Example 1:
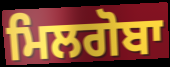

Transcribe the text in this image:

ਮਿਲਗੋਬਾ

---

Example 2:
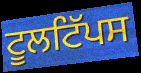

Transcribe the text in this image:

ਟੂਲਟਿੱਪਸ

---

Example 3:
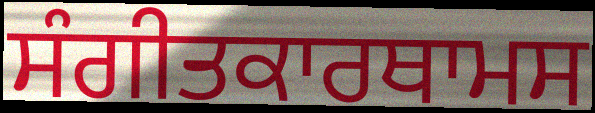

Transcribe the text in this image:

ਸੰਗੀਤਕਾਰਥਾਮਸ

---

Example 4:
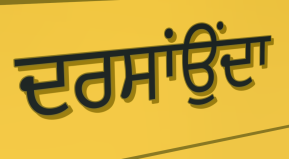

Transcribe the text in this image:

ਦਰਸਾਂਉਂਦਾ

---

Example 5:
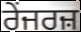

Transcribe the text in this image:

ਰੇਂਜਰਜ਼